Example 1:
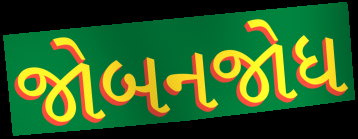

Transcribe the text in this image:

જોબનજોધ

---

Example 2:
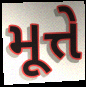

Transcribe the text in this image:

મૂત્તે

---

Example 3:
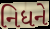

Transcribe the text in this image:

નિધને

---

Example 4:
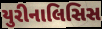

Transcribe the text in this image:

યુરીનાલિસિસ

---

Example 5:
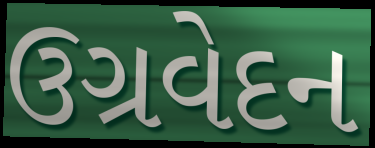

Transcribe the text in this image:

ઉગ્રવેદન